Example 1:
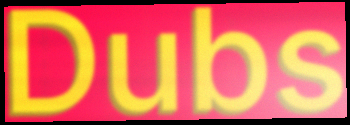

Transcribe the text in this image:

Dubs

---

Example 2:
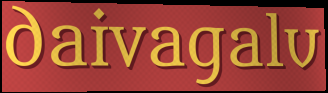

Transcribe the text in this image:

daivagalu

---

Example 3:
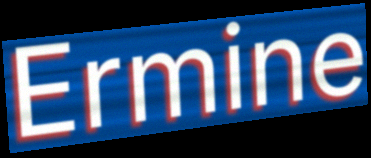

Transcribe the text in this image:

Ermine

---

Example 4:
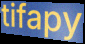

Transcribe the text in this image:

tifapy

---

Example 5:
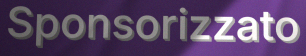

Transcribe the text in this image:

Sponsorizzato